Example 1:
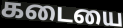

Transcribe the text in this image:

கடையை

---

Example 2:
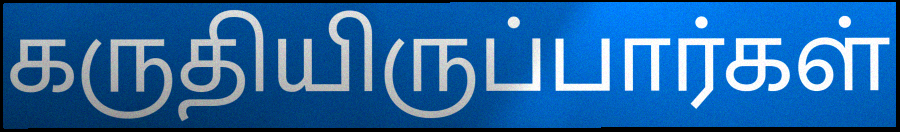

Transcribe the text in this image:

கருதியிருப்பார்கள்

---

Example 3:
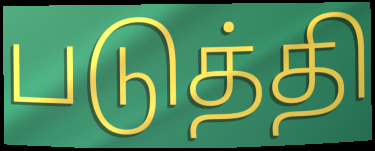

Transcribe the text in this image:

படுத்தி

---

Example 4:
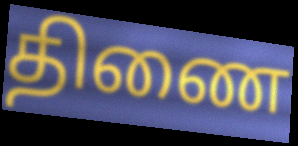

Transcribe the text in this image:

திணை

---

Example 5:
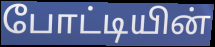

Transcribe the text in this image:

போட்டியின்